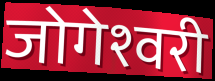
जोगेश्वरी